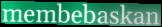
membebaskan